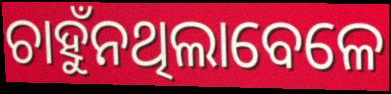
ଚାହୁଁନଥିଲାବେଳେ